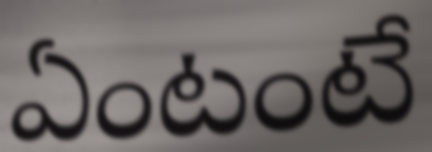
ఏంటంటే